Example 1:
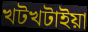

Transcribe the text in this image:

খটখটাইয়া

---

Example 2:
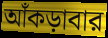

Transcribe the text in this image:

আঁকড়াবার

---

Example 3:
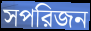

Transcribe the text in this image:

সপরিজন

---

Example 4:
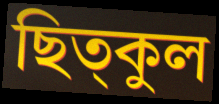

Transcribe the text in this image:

ছিত্কুল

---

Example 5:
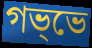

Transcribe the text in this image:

গভ্ভে